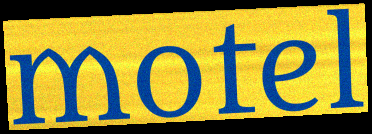
motel